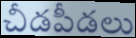
చీడపీడలు